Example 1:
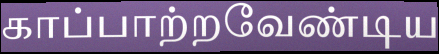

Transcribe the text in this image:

காப்பாற்றவேண்டிய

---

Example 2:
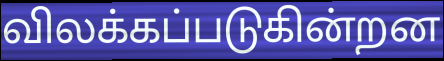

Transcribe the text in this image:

விலக்கப்படுகின்றன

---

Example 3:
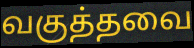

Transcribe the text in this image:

வகுத்தவை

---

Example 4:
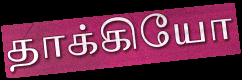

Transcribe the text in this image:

தாக்கியோ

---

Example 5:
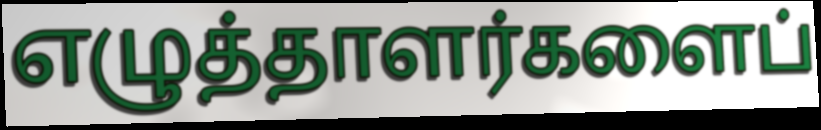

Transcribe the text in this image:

எழுத்தாளர்களைப்